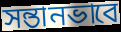
সন্তানভাবে